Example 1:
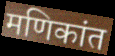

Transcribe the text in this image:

मणिकांत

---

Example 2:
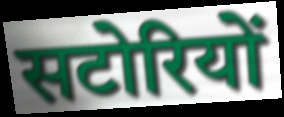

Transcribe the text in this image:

सटोरियों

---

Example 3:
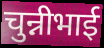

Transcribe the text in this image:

चुन्नीभाई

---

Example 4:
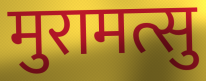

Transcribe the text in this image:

मुरामत्सु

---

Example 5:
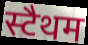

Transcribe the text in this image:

स्टैथम